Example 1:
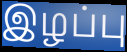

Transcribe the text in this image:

இழப்பு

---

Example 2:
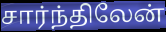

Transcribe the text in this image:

சார்ந்திலேன்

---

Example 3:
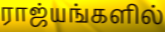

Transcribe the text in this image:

ராஜ்யங்களில்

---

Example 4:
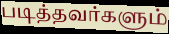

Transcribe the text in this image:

படித்தவர்களும்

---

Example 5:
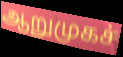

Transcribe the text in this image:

ஆறுமுகச்